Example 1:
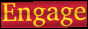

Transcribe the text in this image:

Engage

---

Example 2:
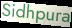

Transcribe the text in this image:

Sidhpura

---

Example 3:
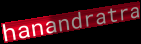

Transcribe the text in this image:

hanandratra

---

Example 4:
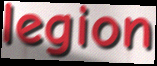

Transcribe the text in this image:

legion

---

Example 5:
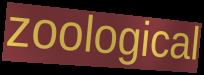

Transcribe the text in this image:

zoological